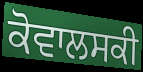
ਕੋਵਾਲਸਕੀ